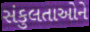
સંકુલતાઓને